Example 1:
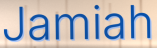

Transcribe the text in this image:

Jamiah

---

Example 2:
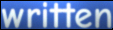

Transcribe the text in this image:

written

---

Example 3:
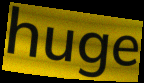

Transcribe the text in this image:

huge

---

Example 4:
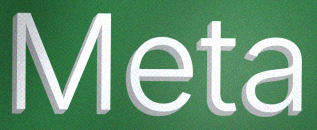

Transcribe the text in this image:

Meta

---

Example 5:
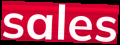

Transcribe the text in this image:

sales